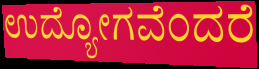
ಉದ್ಯೋಗವೆಂದರೆ